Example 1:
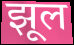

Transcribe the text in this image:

झूल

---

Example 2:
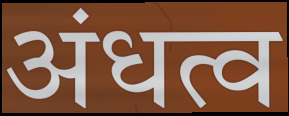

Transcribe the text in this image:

अंधत्व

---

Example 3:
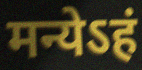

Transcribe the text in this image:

मन्येऽहं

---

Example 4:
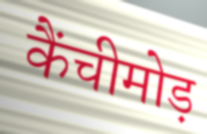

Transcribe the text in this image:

कैंचीमोड़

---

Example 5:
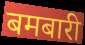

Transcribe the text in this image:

बमबारी